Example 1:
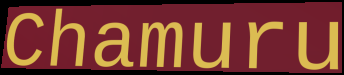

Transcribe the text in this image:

Chamuru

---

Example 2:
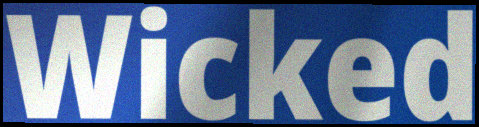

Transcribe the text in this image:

Wicked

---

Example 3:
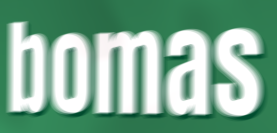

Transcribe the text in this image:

bomas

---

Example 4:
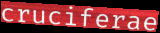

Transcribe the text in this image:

cruciferae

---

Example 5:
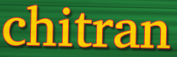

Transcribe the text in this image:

chitran